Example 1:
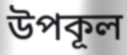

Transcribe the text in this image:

উপকূল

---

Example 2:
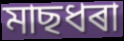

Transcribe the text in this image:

মাছধৰা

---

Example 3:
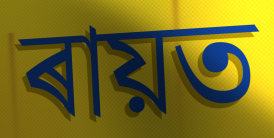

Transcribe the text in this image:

ৰায়ত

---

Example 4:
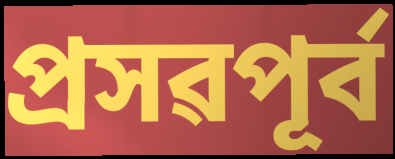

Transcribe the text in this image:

প্ৰসৱপূৰ্ব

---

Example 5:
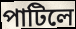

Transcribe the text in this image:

পাটিলে